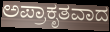
ಅಪ್ರಾಕೃತವಾದ